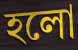
হলো